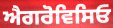
ਐਗਰੋਵਿਸਿਓ